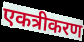
एकत्रीकरण